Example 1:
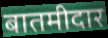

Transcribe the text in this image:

बातमीदार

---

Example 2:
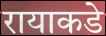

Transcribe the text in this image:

रायाकडे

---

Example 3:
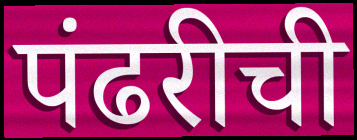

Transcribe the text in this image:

पंढरीची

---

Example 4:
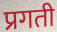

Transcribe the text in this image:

प्रगती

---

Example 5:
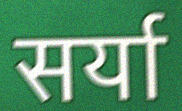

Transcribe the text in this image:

सर्या